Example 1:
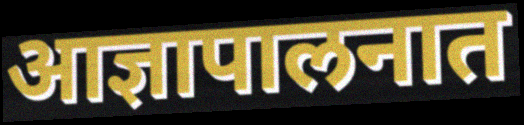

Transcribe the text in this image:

आज्ञापालनात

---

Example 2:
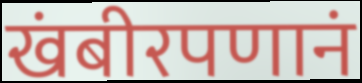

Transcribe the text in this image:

खंबीरपणानं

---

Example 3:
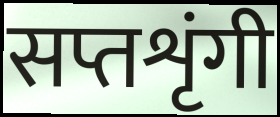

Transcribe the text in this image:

सप्तशृंगी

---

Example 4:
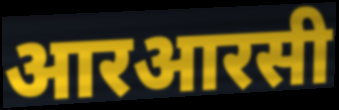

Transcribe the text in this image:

आरआरसी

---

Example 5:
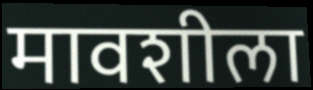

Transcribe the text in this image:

मावशीला